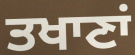
ਤਖਾਣਾਂ